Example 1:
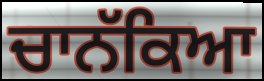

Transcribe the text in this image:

ਚਾਨੱਕਿਆ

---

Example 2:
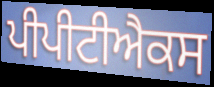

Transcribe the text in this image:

ਪੀਪੀਟੀਐਕਸ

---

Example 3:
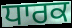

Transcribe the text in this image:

ਧਾਰਕ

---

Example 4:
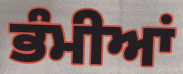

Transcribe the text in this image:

ਭੰਮੀਆਂ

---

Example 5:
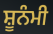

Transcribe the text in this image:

ਸ਼ੂਨੰਮੀ